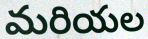
మరియల